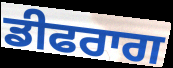
ਡੀਫਰਾਗ